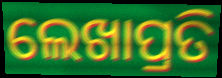
ଲେଖାପ୍ରତି